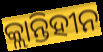
କ୍ଲାନ୍ତିହୀନ